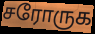
சரோருக